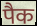
पैक